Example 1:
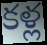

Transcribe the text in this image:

కళ్ల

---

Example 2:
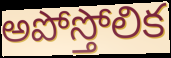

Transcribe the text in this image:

అపోస్తోలిక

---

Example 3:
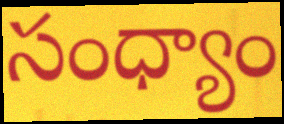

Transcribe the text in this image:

సంధ్యాం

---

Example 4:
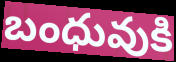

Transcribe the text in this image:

బంధువుకి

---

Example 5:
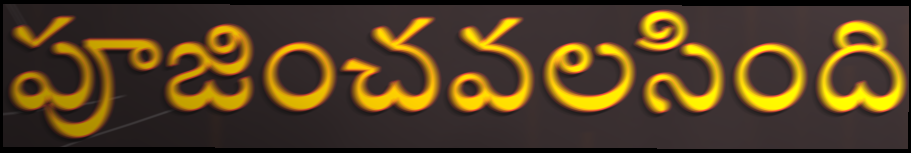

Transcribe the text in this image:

పూజించవలసింది